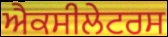
ਐਕਸੀਲੇਟਰਸ